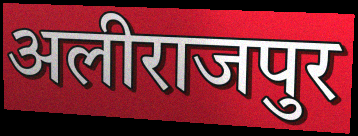
अलीराजपुर